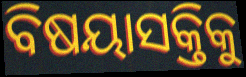
ବିଷୟାସକ୍ତିକୁ